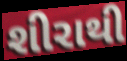
શીરાથી